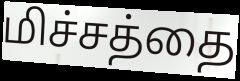
மிச்சத்தை